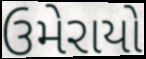
ઉમેરાયો